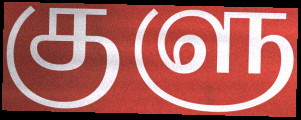
குளு